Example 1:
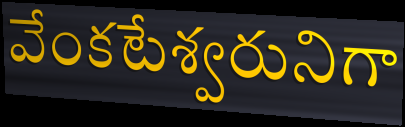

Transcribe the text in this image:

వేంకటేశ్వరునిగా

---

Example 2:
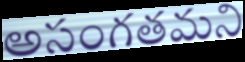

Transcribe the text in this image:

అసంగతమని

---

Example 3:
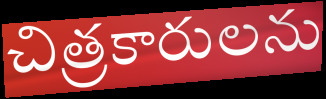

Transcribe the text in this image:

చిత్రకారులను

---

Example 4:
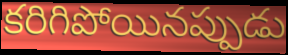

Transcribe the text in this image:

కరిగిపోయినప్పుడు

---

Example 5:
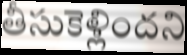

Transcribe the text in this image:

తీసుకెళ్లిందని